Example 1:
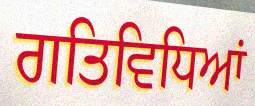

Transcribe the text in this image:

ਗਤਿਵਿਧਿਆਂ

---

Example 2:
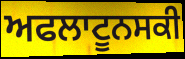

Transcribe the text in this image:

ਅਫਲਾਟੂਨਸਕੀ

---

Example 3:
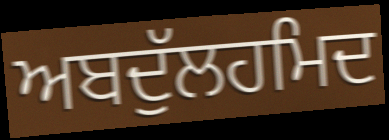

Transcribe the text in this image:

ਅਬਦੁੱਲਹਮਿਦ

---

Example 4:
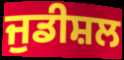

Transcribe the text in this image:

ਜੁਡੀਸ਼ਲ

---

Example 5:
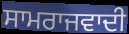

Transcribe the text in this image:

ਸਾਮਰਾਜਵਾਦੀ